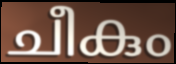
ചീകും